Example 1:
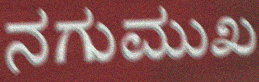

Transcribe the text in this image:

ನಗುಮುಖ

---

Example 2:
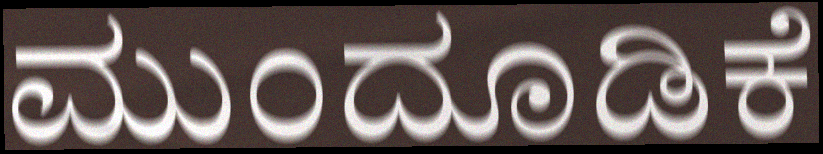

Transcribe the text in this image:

ಮುಂದೂಡಿಕೆ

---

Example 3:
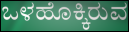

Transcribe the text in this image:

ಒಳಹೊಕ್ಕಿರುವ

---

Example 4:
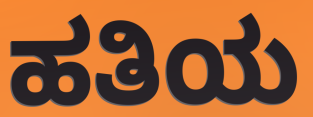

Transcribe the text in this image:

ಹತಿಯ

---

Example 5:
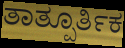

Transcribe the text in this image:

ತಾತ್ಪೂರ್ತಿಕ